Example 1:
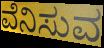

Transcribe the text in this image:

ವೆನಿಸುವ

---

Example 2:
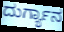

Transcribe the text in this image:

ದುರ್ಗ್ಯಾನ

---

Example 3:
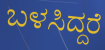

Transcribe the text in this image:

ಬಳಸಿದ್ದರೆ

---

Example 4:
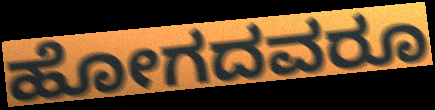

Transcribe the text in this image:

ಹೋಗದವರೂ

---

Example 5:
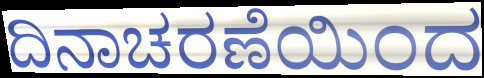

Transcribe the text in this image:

ದಿನಾಚರಣೆಯಿಂದ